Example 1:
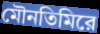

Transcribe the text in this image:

মৌনতিমিরে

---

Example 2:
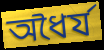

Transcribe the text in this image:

অধৈর্য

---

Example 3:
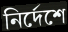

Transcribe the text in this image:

নির্দেশে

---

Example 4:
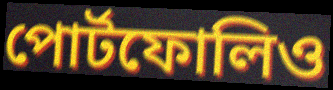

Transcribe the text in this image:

পোর্টফোলিও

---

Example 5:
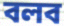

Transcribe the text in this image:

বলব